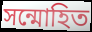
সন্মোহিত